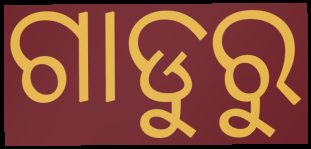
ଗାଡୁରୁ